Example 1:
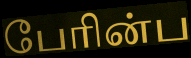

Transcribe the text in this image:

பேரின்ப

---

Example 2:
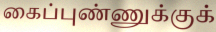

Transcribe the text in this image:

கைப்புண்ணுக்குக்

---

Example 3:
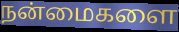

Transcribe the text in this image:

நன்மைகளை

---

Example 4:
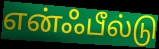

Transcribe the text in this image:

என்ஃபீல்டு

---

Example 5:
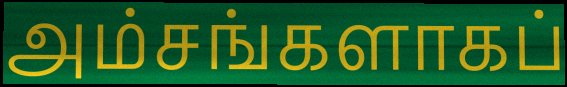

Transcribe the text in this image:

அம்சங்களாகப்